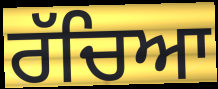
ਰੱਚਿਆ